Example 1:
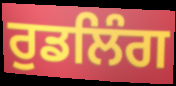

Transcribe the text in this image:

ਰੁਡਲਿੰਗ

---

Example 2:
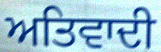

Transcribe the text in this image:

ਅਤਿਵਾਦੀ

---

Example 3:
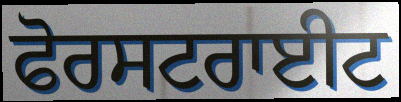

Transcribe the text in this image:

ਫੋਰਸਟਰਾਈਟ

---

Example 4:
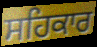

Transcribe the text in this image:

ਸਹਿਕਾਰ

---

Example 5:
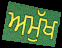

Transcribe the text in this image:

ਅਮੁੱਖ